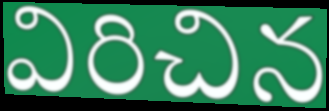
విరిచిన